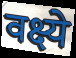
वक्ष्ये